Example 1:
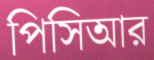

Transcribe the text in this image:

পিসিআর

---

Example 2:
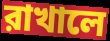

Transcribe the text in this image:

রাখালে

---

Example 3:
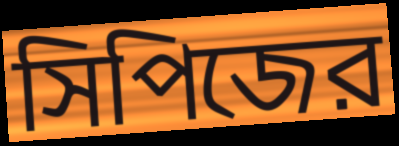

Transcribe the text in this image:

সিপিজের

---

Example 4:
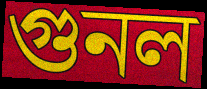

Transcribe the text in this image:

গুনল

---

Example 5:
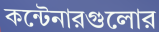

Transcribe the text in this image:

কন্টেনারগুলোর